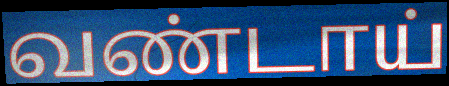
வண்டாய்